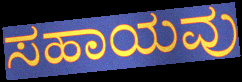
ಸಹಾಯವು